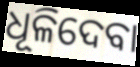
ଧୂଳିଦେବା